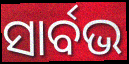
ସାର୍ବଭ